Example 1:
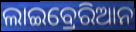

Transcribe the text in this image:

ଲାଇବ୍ରେରିଆନ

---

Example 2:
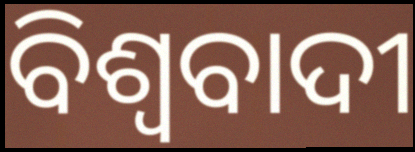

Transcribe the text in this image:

ବିଶ୍ବବାଦୀ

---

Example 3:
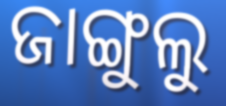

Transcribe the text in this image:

ଜାଙ୍ଗୁଲୁ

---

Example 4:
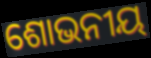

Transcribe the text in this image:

ଶୋଭନୀୟ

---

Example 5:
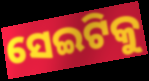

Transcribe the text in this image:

ସେଇଟିକୁ